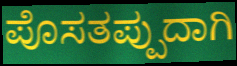
ಪೊಸತಪ್ಪುದಾಗಿ